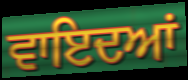
ਵਾਇਦਆਂ